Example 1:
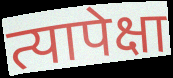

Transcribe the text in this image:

त्यापेक्षा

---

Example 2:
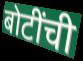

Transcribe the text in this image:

बोटींची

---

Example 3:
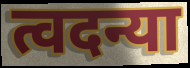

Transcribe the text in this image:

त्वदन्या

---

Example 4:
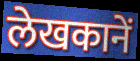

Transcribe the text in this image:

लेखकानें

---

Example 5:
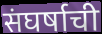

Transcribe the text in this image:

संघर्षाची